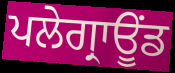
ਪਲੇਗ੍ਰਾਊਂਡ